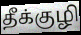
தீக்குழி